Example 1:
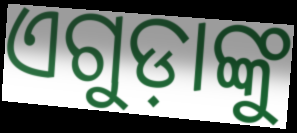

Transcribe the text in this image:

ଏଗୁଡ଼ାଙ୍କୁ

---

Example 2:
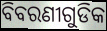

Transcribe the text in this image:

ବିବରଣୀଗୁଡିକ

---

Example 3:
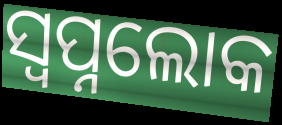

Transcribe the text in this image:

ସ୍ଵପ୍ନଲୋକ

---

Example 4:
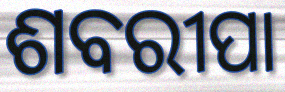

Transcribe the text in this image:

ଶବରୀପା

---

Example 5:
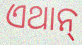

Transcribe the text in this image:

ଏଥାନ୍